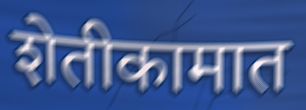
शेतीकामात